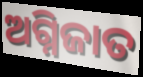
ଅଗ୍ନିଜାତ